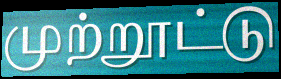
முற்றூட்டு